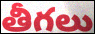
తీగలు